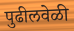
पुढीलवेळी